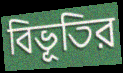
বিভূতির